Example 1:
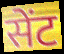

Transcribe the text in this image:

सेंट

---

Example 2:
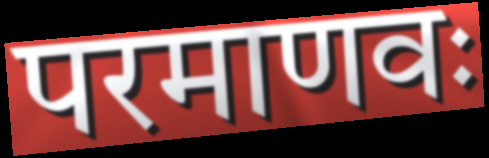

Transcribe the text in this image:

परमाणवः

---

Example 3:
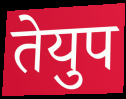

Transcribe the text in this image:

तेयुप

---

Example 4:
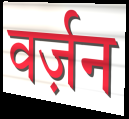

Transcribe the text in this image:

वर्ज़न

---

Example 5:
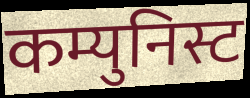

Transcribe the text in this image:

कम्युनिस्ट